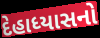
દેહાધ્યાસનો